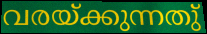
വരയ്ക്കുന്നതു്